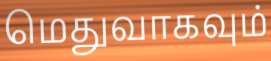
மெதுவாகவும்